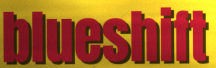
blueshift